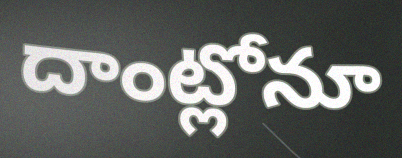
దాంట్లోనూ